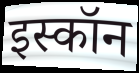
इस्कॉन